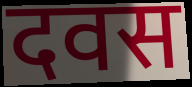
दवस